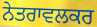
ਨੇਤਰਾਵਲਕਰ